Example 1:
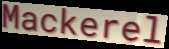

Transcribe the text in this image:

Mackerel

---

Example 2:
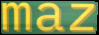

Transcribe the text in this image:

maz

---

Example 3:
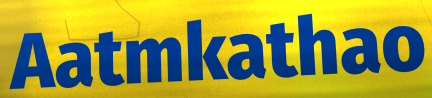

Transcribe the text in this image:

Aatmkathao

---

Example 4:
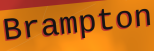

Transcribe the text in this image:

Brampton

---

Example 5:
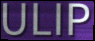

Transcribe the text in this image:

ULIP